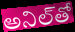
అనిల్‌తో